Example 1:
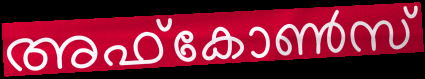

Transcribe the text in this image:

അഫ്കോൺസ്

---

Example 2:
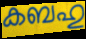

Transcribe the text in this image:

കബഹു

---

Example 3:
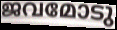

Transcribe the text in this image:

ജവമോടു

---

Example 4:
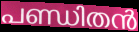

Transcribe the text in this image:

പണ്ഡിതൻ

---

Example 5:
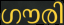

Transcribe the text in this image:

ഗൗരി